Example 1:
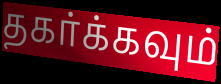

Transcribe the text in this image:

தகர்க்கவும்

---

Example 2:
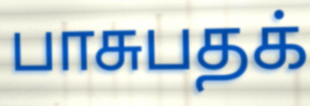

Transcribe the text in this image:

பாசுபதக்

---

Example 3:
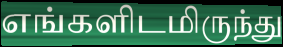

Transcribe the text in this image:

எங்களிடமிருந்து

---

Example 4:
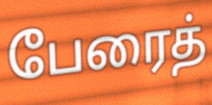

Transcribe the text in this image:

பேரைத்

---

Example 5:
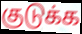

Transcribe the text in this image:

குடுக்க